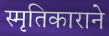
स्मृतिकाराने